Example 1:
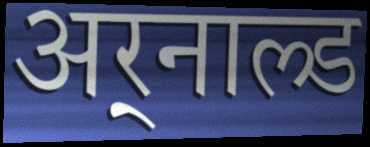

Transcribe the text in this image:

अर्नाल्ड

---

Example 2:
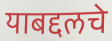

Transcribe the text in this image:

याबद्दलचे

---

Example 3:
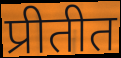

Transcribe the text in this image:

प्रीतीत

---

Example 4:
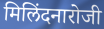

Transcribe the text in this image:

मिलिंदनारोजी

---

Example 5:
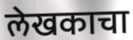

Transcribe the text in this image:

लेखकाचा